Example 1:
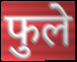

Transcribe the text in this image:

फुले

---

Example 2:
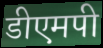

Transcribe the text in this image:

डीएमपी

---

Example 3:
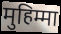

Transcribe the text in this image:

मुहिम्मा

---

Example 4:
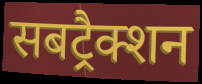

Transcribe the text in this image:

सबट्रैक्शन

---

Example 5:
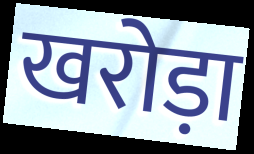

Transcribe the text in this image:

खरोड़ा